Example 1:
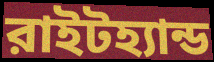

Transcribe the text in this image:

রাইটহ্যান্ড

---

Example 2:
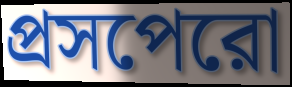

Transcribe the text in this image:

প্রসপেরো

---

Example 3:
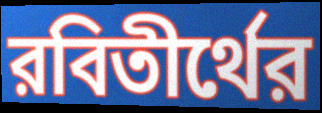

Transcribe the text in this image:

রবিতীর্থের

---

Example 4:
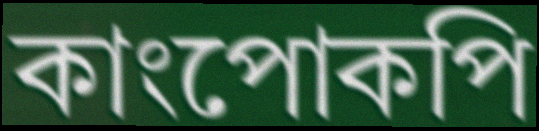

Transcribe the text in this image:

কাংপোকপি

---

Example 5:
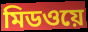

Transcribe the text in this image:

মিডওয়ে